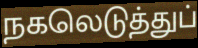
நகலெடுத்துப்